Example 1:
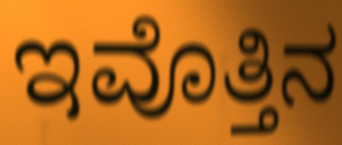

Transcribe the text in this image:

ಇವೊತ್ತಿನ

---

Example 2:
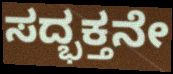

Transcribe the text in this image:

ಸದ್ಭಕ್ತನೇ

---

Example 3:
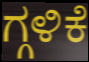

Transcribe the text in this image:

ಗ್ಗಳಿಕೆ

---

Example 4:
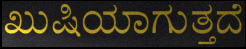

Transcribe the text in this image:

ಖುಷಿಯಾಗುತ್ತದೆ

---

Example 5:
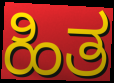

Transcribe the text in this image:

ಹಿತ